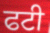
ਫਟੀ